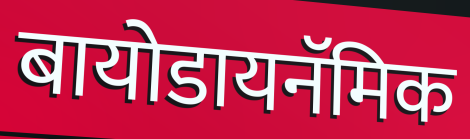
बायोडायनॅमिक